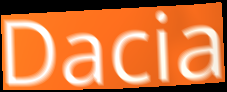
Dacia